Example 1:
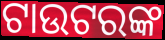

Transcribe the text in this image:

ଟାଉଟରଙ୍କ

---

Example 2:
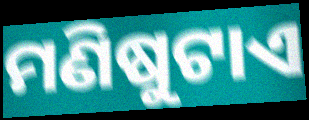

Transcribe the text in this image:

ମଣିଷୁଟାଏ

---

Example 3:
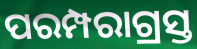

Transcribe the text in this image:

ପରମ୍ପରାଗ୍ରସ୍ତ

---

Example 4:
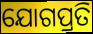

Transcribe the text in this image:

ଯୋଗପ୍ରତି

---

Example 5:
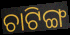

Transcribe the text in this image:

ଚାଟିଙ୍ଗ